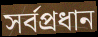
সৰ্বপ্ৰধান